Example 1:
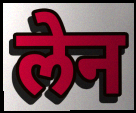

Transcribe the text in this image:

लेन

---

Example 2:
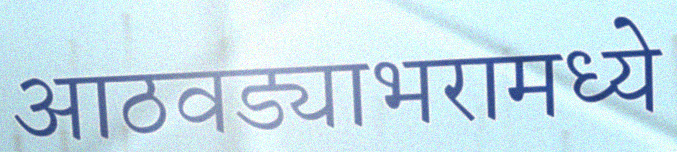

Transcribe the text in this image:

आठवड्याभरामध्ये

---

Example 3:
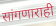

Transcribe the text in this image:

सांगणाराही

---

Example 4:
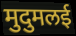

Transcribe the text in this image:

मुदुमलई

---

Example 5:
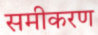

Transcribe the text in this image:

समीकरण